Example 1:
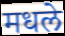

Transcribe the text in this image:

मधले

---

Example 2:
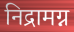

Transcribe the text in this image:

निद्रामग्न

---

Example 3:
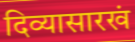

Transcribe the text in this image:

दिव्यासारखं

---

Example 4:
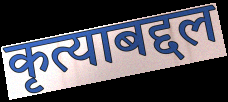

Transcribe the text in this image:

कृत्याबद्दल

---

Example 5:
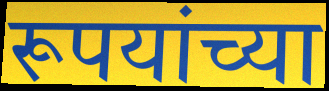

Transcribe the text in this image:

रूपयांच्या